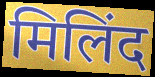
मिलिंद